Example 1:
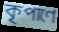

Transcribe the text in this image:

কৃপাণে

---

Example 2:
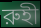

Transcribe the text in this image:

রুহী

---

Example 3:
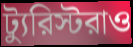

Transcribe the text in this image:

ট্যুরিস্টরাও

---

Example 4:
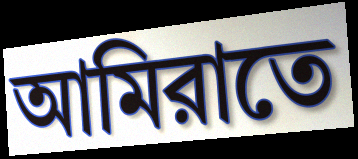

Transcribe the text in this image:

আমিরাতে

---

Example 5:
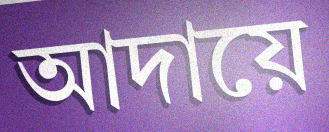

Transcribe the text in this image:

আদায়ে